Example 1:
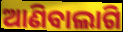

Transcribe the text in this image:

ଆଣିବାଲାଗି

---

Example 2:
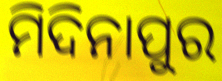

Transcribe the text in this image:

ମିଦିନାପୁର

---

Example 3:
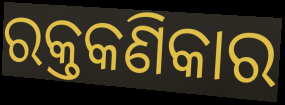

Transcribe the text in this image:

ରକ୍ତକଣିକାର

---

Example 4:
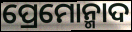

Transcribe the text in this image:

ପ୍ରେମୋନ୍ମାଦ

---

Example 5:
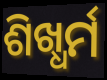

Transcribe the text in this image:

ଶିଖ୍ଧର୍ମ